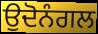
ਉਦੋਨੰਗਲ